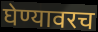
घेण्यावरच